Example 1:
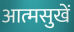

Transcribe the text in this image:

आत्मसुखें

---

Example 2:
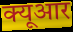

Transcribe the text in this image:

क्‍यूआर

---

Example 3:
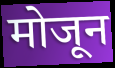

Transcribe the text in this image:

मोजून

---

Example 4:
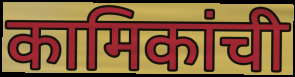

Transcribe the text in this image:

कामिकांची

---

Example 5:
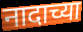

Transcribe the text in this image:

नादाच्या